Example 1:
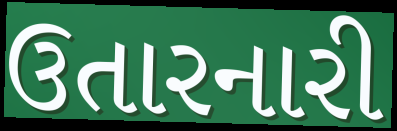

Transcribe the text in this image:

ઉતારનારી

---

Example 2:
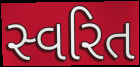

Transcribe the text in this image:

સ્વરિત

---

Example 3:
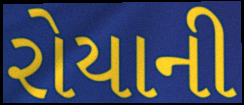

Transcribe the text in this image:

રોયાની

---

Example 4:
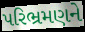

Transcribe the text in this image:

પરિભ્રમણને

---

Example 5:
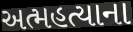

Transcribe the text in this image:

અત્મહત્યાના